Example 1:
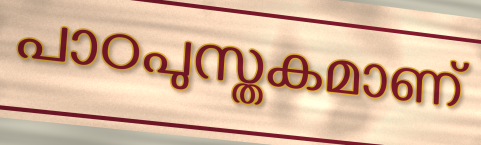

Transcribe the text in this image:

പാഠപുസ്തകമാണ്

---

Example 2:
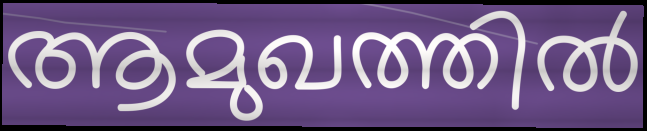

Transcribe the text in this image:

ആമുഖത്തിൽ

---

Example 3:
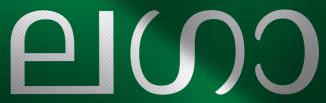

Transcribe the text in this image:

ലഗാ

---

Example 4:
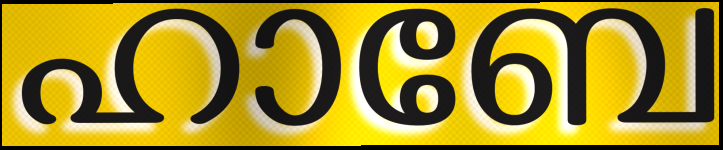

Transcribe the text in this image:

ഹാബേ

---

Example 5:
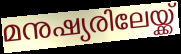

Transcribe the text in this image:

മനുഷ്യരിലേയ്ക്ക്